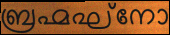
ബ്രഹ്മഘ്നോ